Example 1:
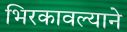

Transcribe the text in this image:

भिरकावल्याने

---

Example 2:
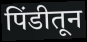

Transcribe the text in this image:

पिंडीतून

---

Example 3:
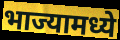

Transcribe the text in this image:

भाज्यामध्ये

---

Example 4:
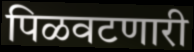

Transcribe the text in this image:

पिळवटणारी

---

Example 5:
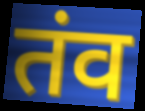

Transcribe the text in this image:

तंव